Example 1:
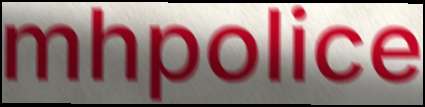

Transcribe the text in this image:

mhpolice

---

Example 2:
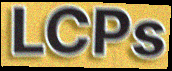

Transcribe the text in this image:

LCPs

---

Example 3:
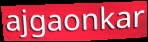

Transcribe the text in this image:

ajgaonkar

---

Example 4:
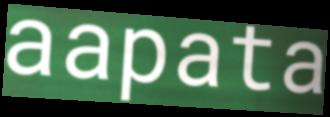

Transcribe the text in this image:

aapata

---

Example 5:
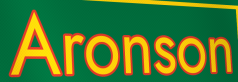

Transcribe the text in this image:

Aronson